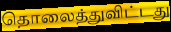
தொலைத்துவிட்டது